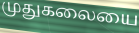
முதுகலையை